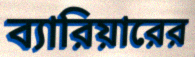
ব্যারিয়ারের